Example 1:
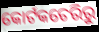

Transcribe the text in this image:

କୋର୍ଟକଚେରିରୁ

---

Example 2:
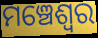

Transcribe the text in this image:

ମଞ୍ଚେଶ୍ଵର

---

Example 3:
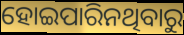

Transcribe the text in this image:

ହୋଇପାରିନଥିବାରୁ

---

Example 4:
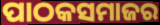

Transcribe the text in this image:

ପାଠକସମାଜର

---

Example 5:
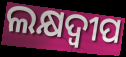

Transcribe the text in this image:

ଲକ୍ଷଦ୍ୱୀପ